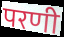
परणी